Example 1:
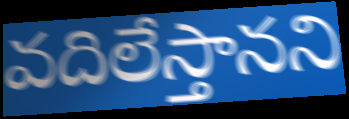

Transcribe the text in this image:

వదిలేస్తానని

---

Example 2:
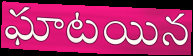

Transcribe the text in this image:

ఘాటయిన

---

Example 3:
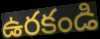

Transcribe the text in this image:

ఉరకండి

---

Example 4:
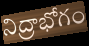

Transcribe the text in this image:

నిద్రాభోగం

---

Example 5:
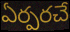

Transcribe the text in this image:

ఏర్పరచే